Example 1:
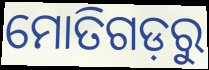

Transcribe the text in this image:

ମୋତିଗଡ଼ରୁ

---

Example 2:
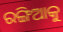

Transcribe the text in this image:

ରଙ୍ଗିଆକୁ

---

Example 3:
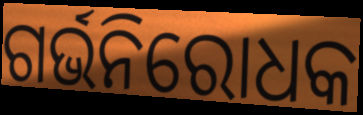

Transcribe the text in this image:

ଗର୍ଭନିରୋଧକ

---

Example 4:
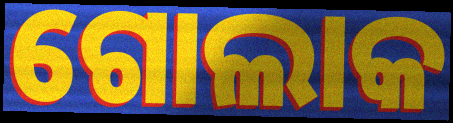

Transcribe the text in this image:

ଗୋଲାକ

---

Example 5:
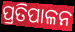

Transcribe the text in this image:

ପ୍ରତିପାଳନ